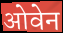
ओवेन